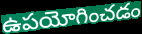
ఉపయోగించడం